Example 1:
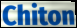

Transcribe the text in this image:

Chiton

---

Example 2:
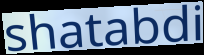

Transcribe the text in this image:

shatabdi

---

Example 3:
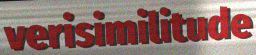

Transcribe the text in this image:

verisimilitude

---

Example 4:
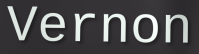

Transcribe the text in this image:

Vernon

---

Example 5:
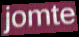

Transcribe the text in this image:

jomte